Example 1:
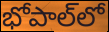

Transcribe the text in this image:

భోపాల్‌లో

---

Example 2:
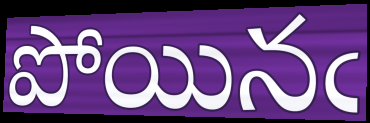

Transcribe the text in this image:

పోయినఁ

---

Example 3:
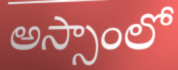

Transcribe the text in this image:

అస్సాంలో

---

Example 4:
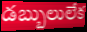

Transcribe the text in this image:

డబ్బులులేక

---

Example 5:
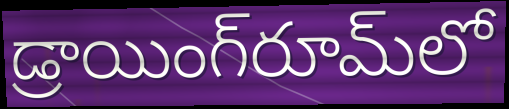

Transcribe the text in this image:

డ్రాయింగ్‌రూమ్‌లో